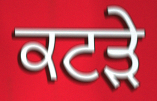
ਕਟੜੇ